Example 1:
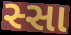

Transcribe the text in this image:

સ્સા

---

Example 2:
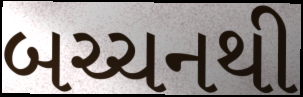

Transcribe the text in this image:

બચ્ચનથી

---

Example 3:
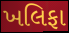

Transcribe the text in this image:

ખલિફા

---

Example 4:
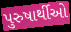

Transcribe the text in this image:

પુરુષાર્થીઓ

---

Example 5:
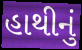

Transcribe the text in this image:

હાથીનું